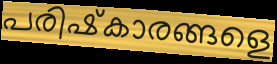
പരിഷ്‌കാരങ്ങളെ